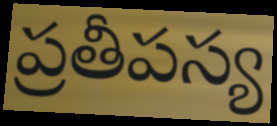
ప్రతీపస్య